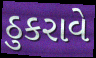
ઠુકરાવે